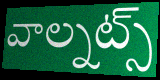
వాల్నట్స్